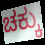
ಚಕ್ಕು